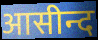
आसीन्द